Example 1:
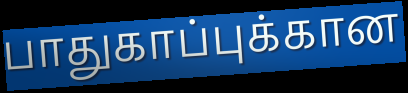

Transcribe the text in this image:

பாதுகாப்புக்கான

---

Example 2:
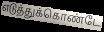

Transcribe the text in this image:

எடுத்துக்கொண்டே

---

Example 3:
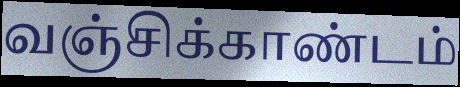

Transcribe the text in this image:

வஞ்சிக்காண்டம்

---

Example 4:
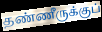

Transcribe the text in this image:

தண்ணீருக்குப்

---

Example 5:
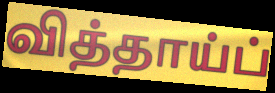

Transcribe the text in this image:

வித்தாய்ப்